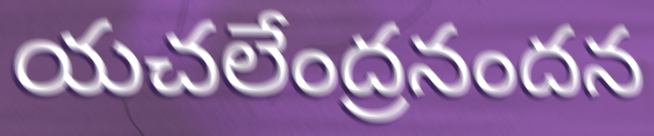
యచలేంద్రనందన